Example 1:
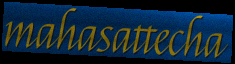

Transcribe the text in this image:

mahasattecha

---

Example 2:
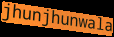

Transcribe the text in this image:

jhunjhunwala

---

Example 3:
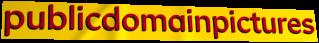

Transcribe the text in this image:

publicdomainpictures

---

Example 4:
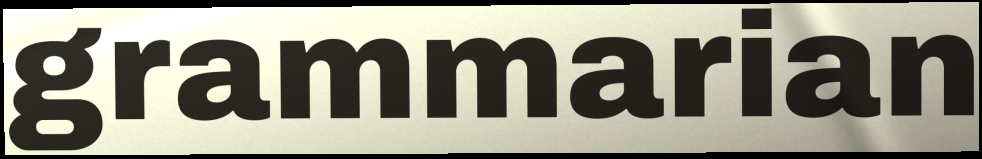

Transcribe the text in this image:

grammarian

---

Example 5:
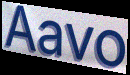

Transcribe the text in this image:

Aavo